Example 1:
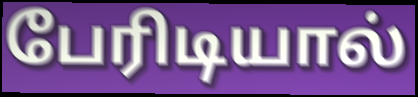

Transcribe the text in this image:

பேரிடியால்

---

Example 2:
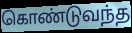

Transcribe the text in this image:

கொண்டுவந்த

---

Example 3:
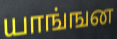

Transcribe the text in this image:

யாங்ஙன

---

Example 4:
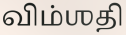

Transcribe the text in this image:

விம்ஶதி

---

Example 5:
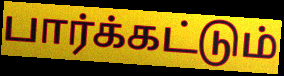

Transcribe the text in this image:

பார்க்கட்டும்